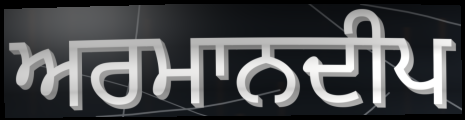
ਅਰਮਾਨਦੀਪ